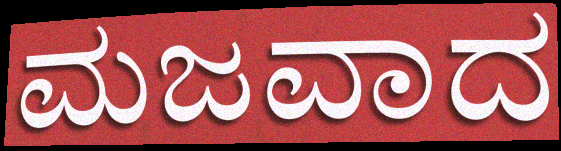
ಮಜವಾದ